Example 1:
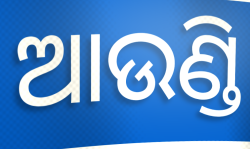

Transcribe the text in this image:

ଆଉଣ୍ଡି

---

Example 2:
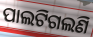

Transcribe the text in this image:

ପାଲଟିଗଲଣି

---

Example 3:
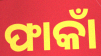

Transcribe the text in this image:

ଫାକାଁ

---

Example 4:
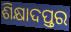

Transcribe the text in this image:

ଶିକ୍ଷାଦପ୍ତର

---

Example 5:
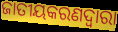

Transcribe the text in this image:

ଜାତୀୟକରଣଦ୍ୱାରା